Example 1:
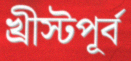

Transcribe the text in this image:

খ্রীস্টপূর্ব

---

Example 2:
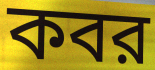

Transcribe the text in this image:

কবর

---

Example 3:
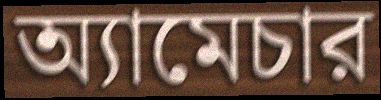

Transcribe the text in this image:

অ্যামেচার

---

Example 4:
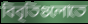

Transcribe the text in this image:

বিবৃতিগুলোতে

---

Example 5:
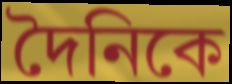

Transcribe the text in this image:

দৈনিকে